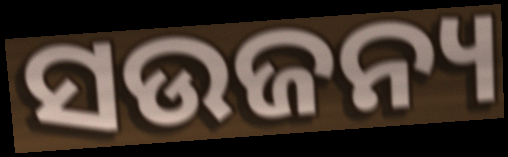
ସଉଜନ୍ୟ